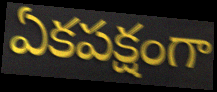
ఏకపక్షంగా